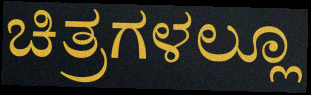
ಚಿತ್ರಗಳಲ್ಲೂ